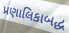
પ્રણાલિકાબદ્ધ